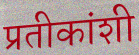
प्रतीकांशी